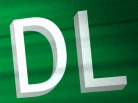
DL